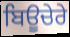
ਬਿਊਚੇਰੇ